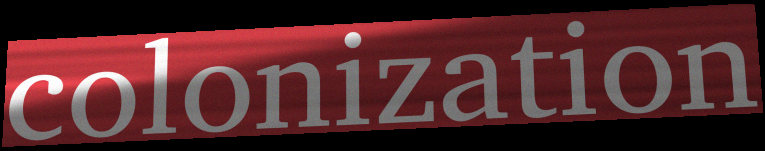
colonization